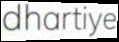
dhartiye